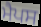
ਮੈਪਸ